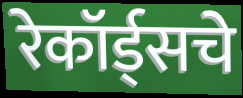
रेकॉर्ड्सचे